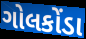
ગોલકોંડા